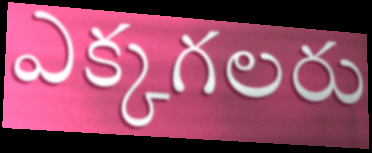
ఎక్కగలరు